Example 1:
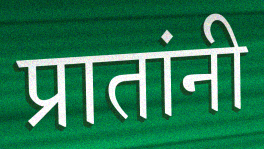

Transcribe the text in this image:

प्रातांनी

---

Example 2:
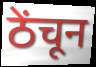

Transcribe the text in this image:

ठेंचून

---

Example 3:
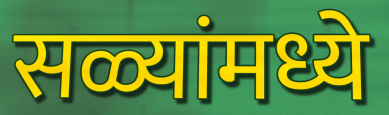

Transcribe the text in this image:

सळ्यांमध्ये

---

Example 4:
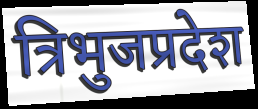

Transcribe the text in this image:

त्रिभुजप्रदेश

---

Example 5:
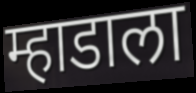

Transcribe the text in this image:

म्हाडाला